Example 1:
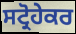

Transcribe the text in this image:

ਸਟ੍ਰੋਹੇਕਰ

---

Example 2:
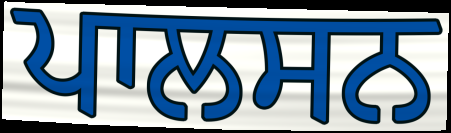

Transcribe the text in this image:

ਪਾਲਸਨ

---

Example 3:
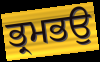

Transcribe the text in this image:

ਭ੍ਰਮਭਉ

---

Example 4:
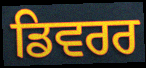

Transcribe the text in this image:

ਡਿਵਰਰ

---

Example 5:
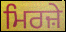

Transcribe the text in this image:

ਮਿਰਜ਼ੇ